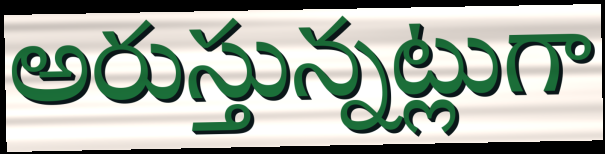
అరుస్తున్నట్లుగా